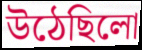
উঠেছিলো